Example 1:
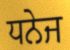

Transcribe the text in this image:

ਧਨੇਜ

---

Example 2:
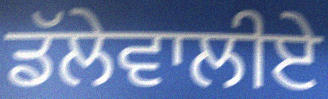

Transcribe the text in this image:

ਡੱਲੇਵਾਲੀਏ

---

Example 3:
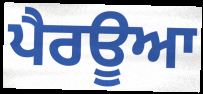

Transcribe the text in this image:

ਪੈਰਊਆ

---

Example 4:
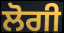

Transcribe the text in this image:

ਲੋਗੀ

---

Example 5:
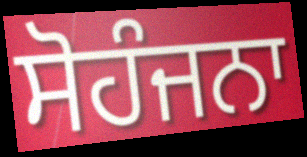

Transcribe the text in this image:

ਸੋਹੰਜਨਾ